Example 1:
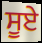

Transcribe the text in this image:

ਸੂਏ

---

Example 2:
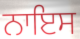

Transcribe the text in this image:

ਨਾਇਸ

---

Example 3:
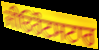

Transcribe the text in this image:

ਜੀਓਹੌਟਸਟਾਰ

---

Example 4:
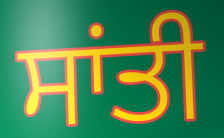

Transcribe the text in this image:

ਸਾਂਤੀ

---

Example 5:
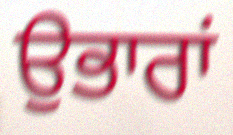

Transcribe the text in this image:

ਉਭਾਰਾਂ